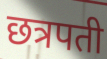
छत्रपती